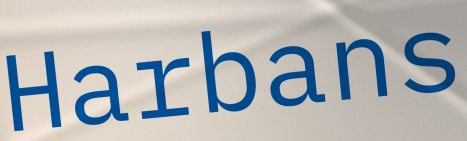
Harbans